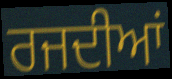
ਰਜਦੀਆਂ